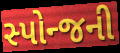
સ્પોન્જની